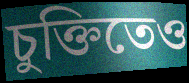
চুক্তিতেও